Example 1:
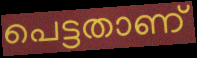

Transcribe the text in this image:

പെട്ടതാണ്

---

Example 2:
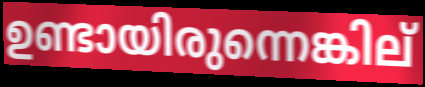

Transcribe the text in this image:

ഉണ്ടായിരുന്നെങ്കില്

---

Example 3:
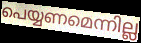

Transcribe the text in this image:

പെയ്യണമെന്നില്ല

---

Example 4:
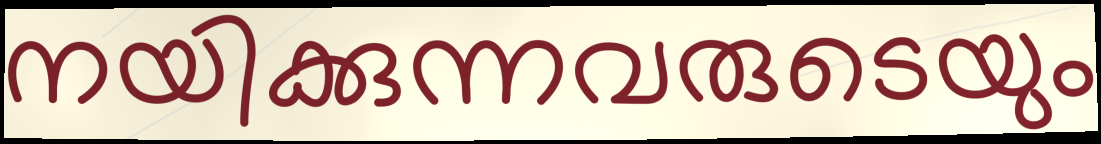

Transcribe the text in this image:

നയിക്കുന്നവരുടെയും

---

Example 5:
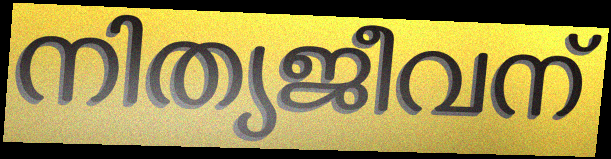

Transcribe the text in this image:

നിത്യജീവന്